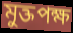
মুক্তপক্ষ